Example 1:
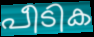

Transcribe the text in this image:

പീടിക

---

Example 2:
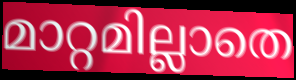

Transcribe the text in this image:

മാറ്റമില്ലാതെ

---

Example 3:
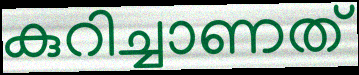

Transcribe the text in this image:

കുറിച്ചാണത്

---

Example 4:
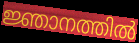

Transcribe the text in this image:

ജ്ഞാനത്തിൽ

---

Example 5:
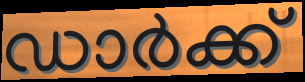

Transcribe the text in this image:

ഡാർക്ക്